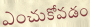
ఎంచుకోవడం